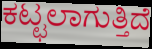
ಕಟ್ಟಲಾಗುತ್ತಿದೆ